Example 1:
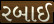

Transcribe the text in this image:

રબાઈ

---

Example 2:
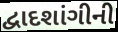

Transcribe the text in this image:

દ્વાદશાંગીની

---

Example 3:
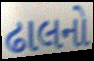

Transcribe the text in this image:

ઢાલનો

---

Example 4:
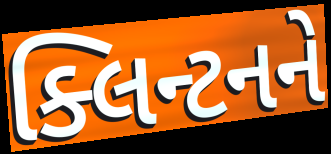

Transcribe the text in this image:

ક્લિન્ટનને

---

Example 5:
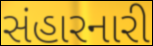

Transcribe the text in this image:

સંહારનારી